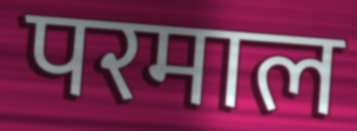
परमाल